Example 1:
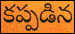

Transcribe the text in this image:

కప్పడిన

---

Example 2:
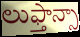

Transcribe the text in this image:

లుఫ్తాన్సా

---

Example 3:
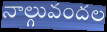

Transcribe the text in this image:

నాల్గువందల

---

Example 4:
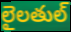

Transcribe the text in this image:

లైలతుల్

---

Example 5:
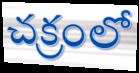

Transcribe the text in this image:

చక్రంలో